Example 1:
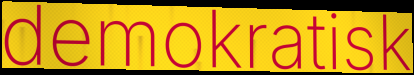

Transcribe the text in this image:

demokratisk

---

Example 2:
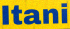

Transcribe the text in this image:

Itani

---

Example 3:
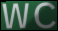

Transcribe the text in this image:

wc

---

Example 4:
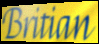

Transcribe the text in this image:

Britian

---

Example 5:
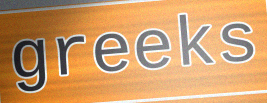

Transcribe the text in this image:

greeks